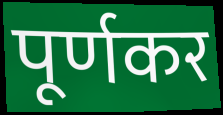
पूर्णकर